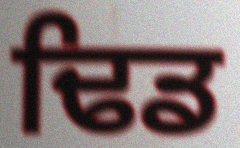
ਢਿਡ